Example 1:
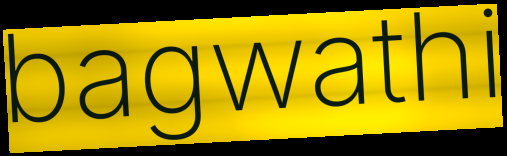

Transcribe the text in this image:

bagwathi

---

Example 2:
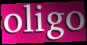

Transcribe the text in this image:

oligo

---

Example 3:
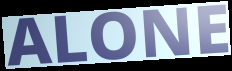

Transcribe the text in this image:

ALONE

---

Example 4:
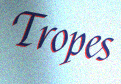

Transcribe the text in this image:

Tropes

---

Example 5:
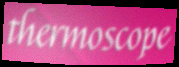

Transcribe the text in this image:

thermoscope